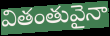
వితంతువైనా